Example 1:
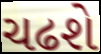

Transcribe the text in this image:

ચઢશે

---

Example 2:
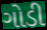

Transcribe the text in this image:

ગોડી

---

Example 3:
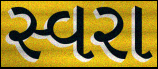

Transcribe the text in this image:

સ્વરા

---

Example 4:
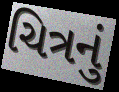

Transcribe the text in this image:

ચિત્રનું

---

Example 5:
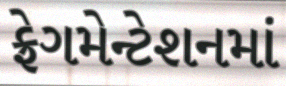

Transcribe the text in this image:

ફ્રેગમેન્ટેશનમાં